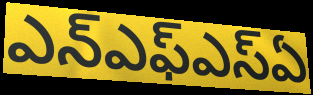
ఎన్ఎఫ్ఎస్ఏ